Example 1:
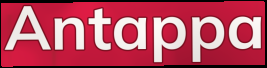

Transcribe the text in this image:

Antappa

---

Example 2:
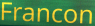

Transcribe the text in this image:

Francon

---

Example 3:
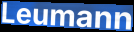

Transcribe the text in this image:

Leumann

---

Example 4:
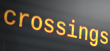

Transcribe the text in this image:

crossings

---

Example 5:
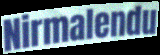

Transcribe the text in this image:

Nirmalendu